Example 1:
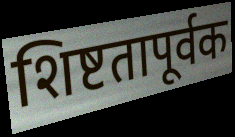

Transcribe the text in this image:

शिष्टतापूर्वक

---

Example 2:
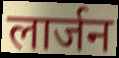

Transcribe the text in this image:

लार्जन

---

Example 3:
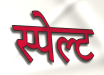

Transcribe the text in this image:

स्पेल्ट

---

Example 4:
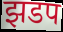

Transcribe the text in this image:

झडप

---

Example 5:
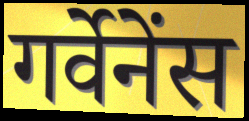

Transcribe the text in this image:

गर्वेनेंस